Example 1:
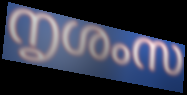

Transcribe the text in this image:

നൃശംസ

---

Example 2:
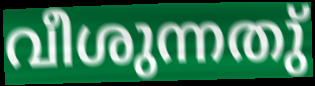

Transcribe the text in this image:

വീശുന്നതു്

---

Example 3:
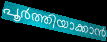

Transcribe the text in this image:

പൂർത്തിയാക്കാൻ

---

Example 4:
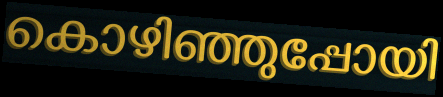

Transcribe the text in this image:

കൊഴിഞ്ഞുപ്പോയി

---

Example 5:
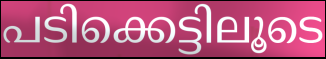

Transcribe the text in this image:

പടിക്കെട്ടിലൂടെ